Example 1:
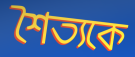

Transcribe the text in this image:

শৈত্যকে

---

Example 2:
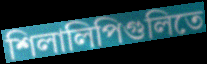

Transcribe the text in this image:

শিলালিপিগুলিতে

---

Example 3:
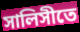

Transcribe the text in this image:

সালিসীতে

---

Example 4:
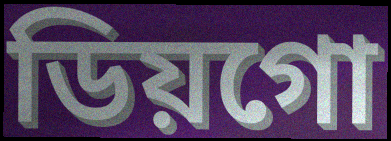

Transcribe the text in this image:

ডিয়গো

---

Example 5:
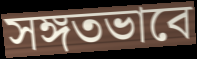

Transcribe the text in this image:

সঙ্গতভাবে